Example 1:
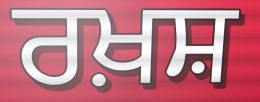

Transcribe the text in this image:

ਰਖ਼ਸ਼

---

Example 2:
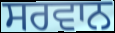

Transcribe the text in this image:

ਸਰਵਾਨ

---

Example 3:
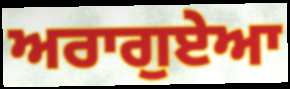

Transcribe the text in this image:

ਅਰਾਗੁਏਆ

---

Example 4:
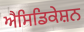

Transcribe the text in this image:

ਐਸਿਡਿਕੇਸ਼ਨ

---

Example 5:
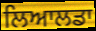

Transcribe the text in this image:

ਲਿਆਲਡਾ